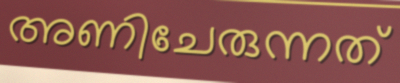
അണിചേരുന്നത്